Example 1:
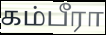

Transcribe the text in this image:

கம்பீரா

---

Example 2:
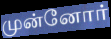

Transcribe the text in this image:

முன்னோர்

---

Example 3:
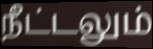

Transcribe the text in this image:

நீட்டலும்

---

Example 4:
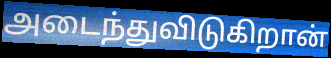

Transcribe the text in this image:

அடைந்துவிடுகிறான்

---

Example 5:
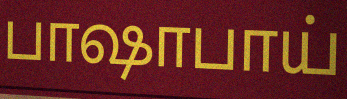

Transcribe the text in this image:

பாஷாபாய்